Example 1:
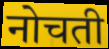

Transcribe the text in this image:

नोचती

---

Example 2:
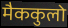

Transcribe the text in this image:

मैककुलो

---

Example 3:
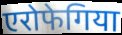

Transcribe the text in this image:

एरोफेगिया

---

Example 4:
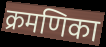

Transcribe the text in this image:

क्रमणिका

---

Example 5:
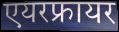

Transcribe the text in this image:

एयरफ्रायर